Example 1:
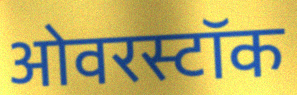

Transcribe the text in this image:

ओवरस्टॉक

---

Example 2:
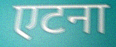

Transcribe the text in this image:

एटना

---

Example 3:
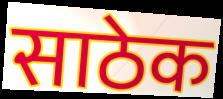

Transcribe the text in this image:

साठेक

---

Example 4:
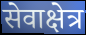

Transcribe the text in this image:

सेवाक्षेत्र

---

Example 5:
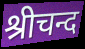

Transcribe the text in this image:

श्रीचन्द